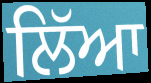
ਲਿੱਆ